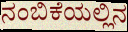
ನಂಬಿಕೆಯಲ್ಲಿನ